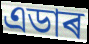
এডাৰ